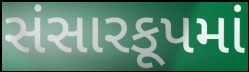
સંસારકૂપમાં